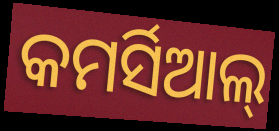
କମର୍ସିଆଲ୍